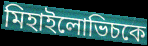
মিহাইলোভিচকে